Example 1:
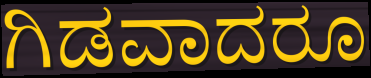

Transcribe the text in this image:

ಗಿಡವಾದರೂ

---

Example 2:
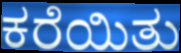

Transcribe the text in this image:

ಕರೆಯಿತು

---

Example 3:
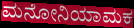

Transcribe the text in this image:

ಮನೋನಿಯಾಮಕ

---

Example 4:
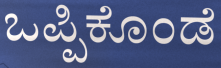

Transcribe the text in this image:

ಒಪ್ಪಿಕೊಂಡೆ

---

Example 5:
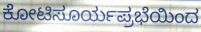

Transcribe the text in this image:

ಕೋಟಿಸೂರ್ಯಪ್ರಭೆಯಿಂದ